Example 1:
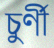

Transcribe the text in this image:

চুর্ণী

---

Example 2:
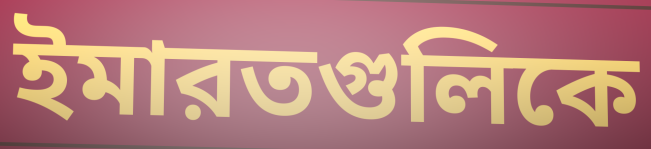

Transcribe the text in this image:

ইমারতগুলিকে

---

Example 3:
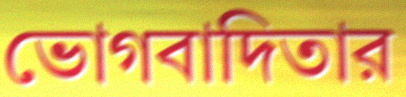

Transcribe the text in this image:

ভোগবাদিতার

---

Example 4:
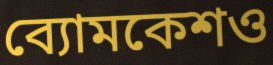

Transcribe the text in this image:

ব্যোমকেশও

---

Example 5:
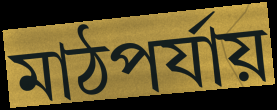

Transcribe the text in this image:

মাঠপর্যায়